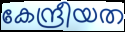
കേന്ദ്രീയത